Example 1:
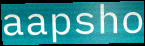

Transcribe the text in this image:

aapsho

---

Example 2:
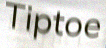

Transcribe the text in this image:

Tiptoe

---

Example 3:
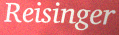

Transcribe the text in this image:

Reisinger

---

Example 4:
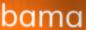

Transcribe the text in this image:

bama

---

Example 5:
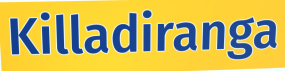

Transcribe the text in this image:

Killadiranga